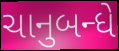
ચાનુબન્ધે